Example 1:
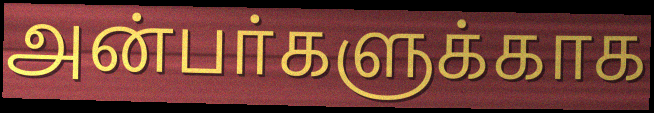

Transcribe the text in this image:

அன்பர்களுக்காக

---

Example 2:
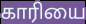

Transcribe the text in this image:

காரியை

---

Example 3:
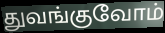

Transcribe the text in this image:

துவங்குவோம்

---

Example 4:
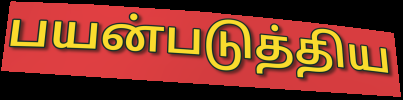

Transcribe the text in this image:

பயன்படுத்திய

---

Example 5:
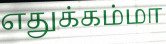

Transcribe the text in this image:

எதுக்கம்மா